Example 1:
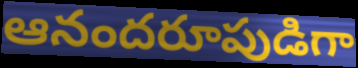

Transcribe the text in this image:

ఆనందరూపుడిగా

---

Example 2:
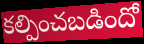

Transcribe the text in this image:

కల్పించబడిందో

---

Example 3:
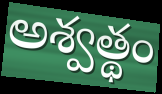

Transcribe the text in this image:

అశ్వత్థం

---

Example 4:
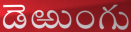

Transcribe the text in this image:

డెఱుంగు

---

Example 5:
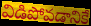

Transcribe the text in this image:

విడిపోవడానికే